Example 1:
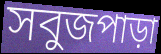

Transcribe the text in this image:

সবুজপাড়া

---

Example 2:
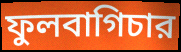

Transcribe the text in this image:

ফুলবাগিচার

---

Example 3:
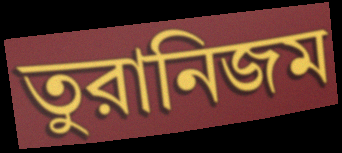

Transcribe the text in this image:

তুরানিজম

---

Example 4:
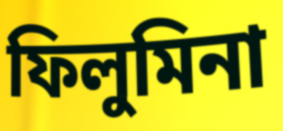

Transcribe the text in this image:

ফিলুমিনা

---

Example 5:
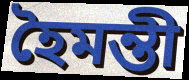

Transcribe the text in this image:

হৈমন্তী